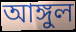
আঙ্গুল